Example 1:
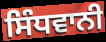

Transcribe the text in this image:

ਸਿੰਧਵਾਨੀ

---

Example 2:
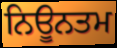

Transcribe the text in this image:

ਨਿਊਨਤਮ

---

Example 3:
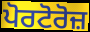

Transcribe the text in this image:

ਪੋਰਟੋਰੋਜ਼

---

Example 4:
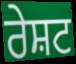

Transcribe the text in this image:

ਰੇਸ਼ਟ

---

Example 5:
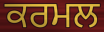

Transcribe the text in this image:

ਕਰਮਲ